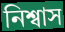
নিশ্বাস